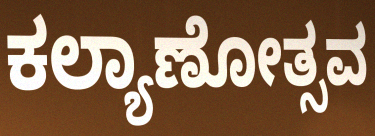
ಕಲ್ಯಾಣೋತ್ಸವ